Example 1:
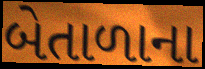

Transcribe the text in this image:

બેતાળાના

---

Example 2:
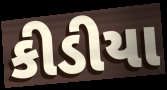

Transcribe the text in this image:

કીડીયા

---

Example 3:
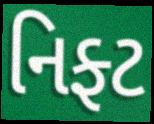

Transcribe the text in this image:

નિફ્ટ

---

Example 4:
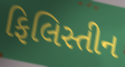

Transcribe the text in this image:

ફિલિસ્તીન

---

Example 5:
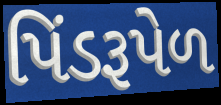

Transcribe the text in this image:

પિંડરૂપેળ